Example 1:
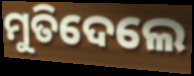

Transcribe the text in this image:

ମୁତିଦେଲେ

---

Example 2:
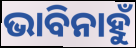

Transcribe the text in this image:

ଭାବିନାହୁଁ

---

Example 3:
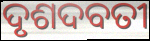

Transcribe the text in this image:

ଦୃଶଦବତୀ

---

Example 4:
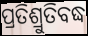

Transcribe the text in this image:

ପ୍ରତିଶ୍ରୁତିବଦ୍ଧ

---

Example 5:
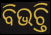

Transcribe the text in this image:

ବିଭଚ୍ତି